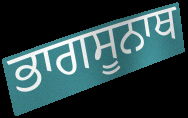
ਭਾਗਸੂਨਾਥ